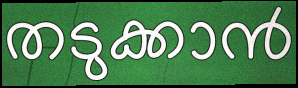
തടുക്കാൻ